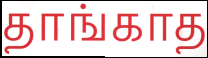
தாங்காத